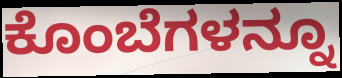
ಕೊಂಬೆಗಳನ್ನೂ